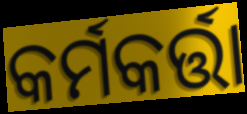
କର୍ମକର୍ତ୍ତା